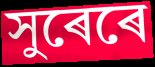
সুৰেৰে